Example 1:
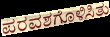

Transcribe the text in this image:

ಪರವಶಗೊಳಿಸಿತು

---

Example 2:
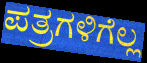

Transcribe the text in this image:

ಪತ್ರಗಳಿಗೆಲ್ಲ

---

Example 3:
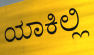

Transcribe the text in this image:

ಯಾಕಿಲ್ಲಿ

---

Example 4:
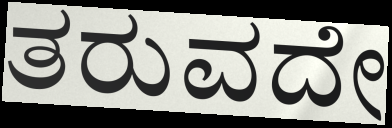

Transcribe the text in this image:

ತರುವದೇ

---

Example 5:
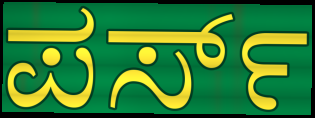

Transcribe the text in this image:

ಪರ್ಸ್